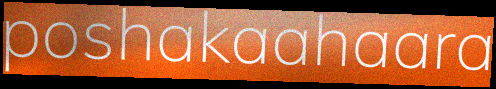
poshakaahaara